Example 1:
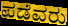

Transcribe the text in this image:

ಪಡೆವರು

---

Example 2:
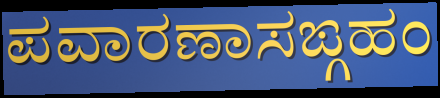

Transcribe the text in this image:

ಪವಾರಣಾಸಙ್ಗಹಂ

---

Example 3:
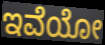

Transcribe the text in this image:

ಇವೆಯೋ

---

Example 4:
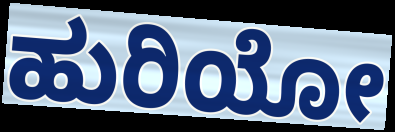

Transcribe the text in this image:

ಹುರಿಯೋ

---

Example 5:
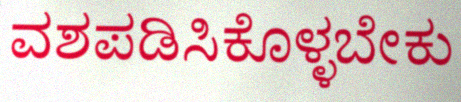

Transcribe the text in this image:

ವಶಪಡಿಸಿಕೊಳ್ಳಬೇಕು